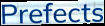
Prefects